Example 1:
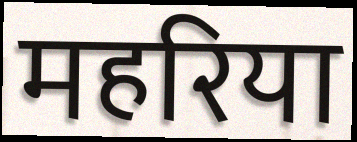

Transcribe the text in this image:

महरिया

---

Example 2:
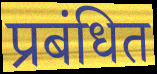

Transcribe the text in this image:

प्रबंधित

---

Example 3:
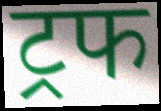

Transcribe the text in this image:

ट्रफ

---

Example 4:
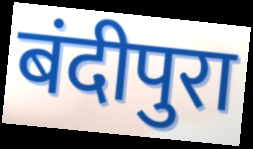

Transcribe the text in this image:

बंदीपुरा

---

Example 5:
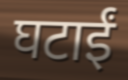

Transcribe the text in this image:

घटाईं